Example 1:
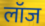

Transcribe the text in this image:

लॉज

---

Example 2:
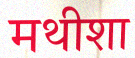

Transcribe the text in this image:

मथीशा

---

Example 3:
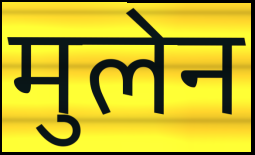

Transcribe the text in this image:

मुलेन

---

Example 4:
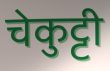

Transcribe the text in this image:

चेकुट्टी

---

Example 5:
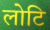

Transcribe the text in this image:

लोटि